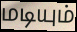
மடியும்